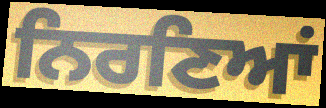
ਨਿਰਣਿਆਂ